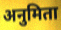
अनुमिता